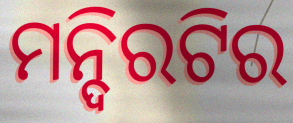
ମନ୍ଦିରଟିର